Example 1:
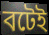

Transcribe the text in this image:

বটেই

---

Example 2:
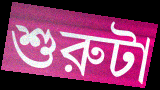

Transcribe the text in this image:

শুরুটা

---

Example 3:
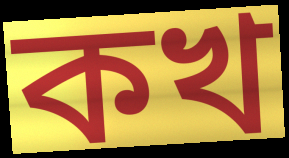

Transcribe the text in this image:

কখ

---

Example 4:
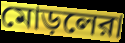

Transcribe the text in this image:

মোড়লেরা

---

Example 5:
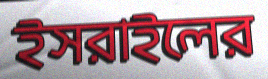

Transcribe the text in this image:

ইসরাইলের